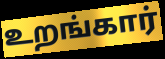
உறங்கார்